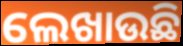
ଲେଖାଉଛି